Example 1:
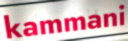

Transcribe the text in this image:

kammani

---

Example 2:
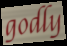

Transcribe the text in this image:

godly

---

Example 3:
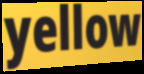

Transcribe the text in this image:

yellow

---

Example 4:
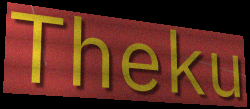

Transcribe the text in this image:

Theku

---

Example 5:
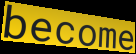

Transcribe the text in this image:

become